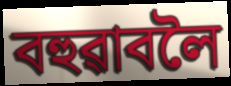
বহুৱাবলৈ